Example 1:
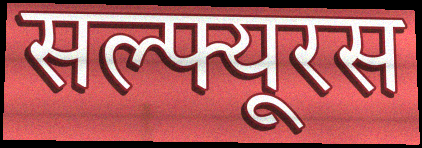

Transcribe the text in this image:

सल्फ्यूरस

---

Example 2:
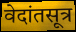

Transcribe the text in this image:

वेदांतसूत्र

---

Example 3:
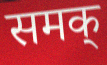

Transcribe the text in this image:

समक्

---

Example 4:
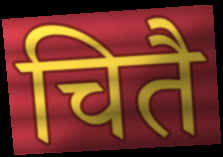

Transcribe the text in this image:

चितै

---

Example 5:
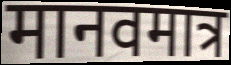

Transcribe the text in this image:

मानवमात्र